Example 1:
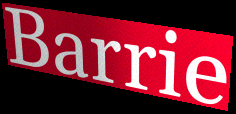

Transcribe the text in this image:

Barrie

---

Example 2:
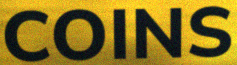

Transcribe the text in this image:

COINS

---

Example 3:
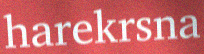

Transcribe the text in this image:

harekrsna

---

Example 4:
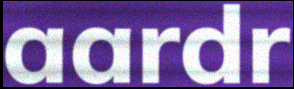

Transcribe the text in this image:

aardr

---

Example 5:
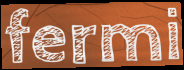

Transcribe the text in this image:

fermi